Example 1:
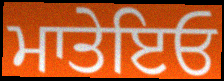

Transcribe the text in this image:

ਮਾਤੇਇਓ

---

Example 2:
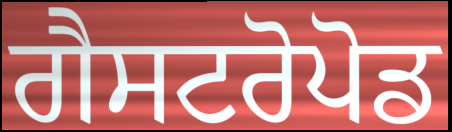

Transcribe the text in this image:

ਗੈਸਟਰੋਪੋਡ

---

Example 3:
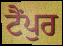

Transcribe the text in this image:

ਟੈਂਪੁਰ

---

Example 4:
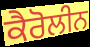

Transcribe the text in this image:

ਕੈਰੋਲੀਨ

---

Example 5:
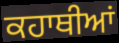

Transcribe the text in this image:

ਕਹਾਥੀਆਂ